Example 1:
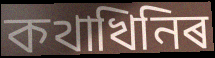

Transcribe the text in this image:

কথাখিনিৰ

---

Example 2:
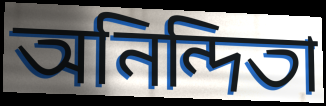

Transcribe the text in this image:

অনিন্দিতা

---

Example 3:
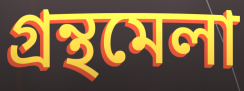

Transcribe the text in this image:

গ্ৰন্থমেলা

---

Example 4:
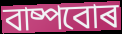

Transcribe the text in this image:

বাষ্পবোৰ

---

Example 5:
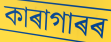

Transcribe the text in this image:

কাৰাগাৰৰ